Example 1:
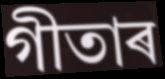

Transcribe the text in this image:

গীতাৰ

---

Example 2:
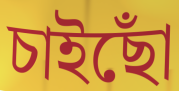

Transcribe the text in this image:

চাইছোঁ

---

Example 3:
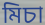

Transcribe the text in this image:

মিচা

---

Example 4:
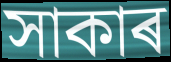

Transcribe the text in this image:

সাকাৰ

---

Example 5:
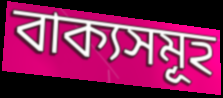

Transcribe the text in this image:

বাক্যসমূহ